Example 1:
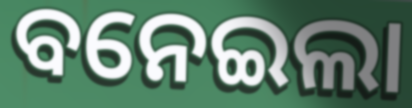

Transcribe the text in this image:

ବନେଇଲା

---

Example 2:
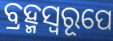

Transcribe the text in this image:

ବ୍ରହ୍ମସ୍ୱରୂପେ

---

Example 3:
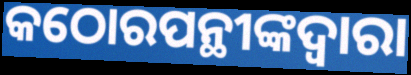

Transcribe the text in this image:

କଠୋରପନ୍ଥୀଙ୍କଦ୍ୱାରା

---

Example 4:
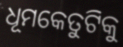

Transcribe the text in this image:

ଧୂମକେତୁଟିକୁ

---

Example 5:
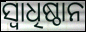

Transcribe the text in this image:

ସ୍ୱାଧିଷ୍ଠାନ